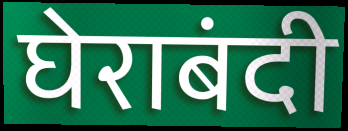
घेराबंदी